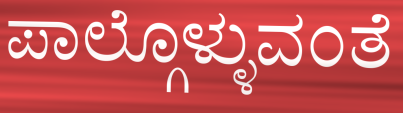
ಪಾಲ್ಗೊಳ್ಳುವಂತೆ